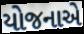
યોજનાએ